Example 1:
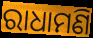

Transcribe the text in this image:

ରାଧାମଣି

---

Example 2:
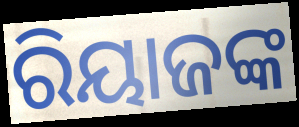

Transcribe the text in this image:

ରିୟାଜଙ୍କ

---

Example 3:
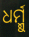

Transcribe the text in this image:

ଧର୍ମ୍ମୁ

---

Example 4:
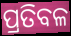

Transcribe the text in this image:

ପ୍ରତିବଳ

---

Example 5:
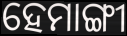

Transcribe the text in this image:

ହେମାଙ୍ଗୀ